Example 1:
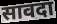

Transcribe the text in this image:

सावदा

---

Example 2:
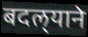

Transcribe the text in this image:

बदल्याने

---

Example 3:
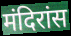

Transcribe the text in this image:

मंदिरांस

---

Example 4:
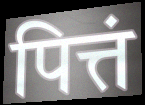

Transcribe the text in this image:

पित्तं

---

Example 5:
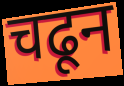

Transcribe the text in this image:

चढून